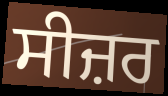
ਸੀਜ਼ਰ